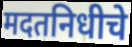
मदतनिधीचे